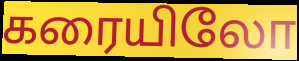
கரையிலோ